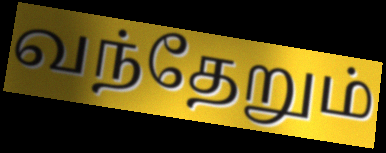
வந்தேறும்